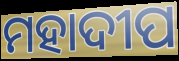
ମହାଦୀପ